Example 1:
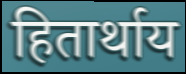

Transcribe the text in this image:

हितार्थाय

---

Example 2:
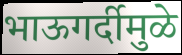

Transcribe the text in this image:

भाऊगर्दीमुळे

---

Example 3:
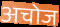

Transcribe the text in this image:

अचोज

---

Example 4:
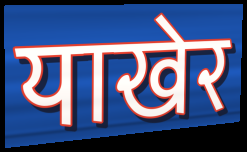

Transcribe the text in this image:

याखेर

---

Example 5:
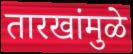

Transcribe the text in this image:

तारखांमुळे